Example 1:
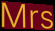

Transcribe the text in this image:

Mrs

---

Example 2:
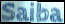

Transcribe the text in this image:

Saiba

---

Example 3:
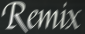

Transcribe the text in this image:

Remix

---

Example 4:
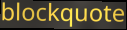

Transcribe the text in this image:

blockquote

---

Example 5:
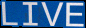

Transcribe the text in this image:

LIVE